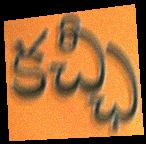
కచ్ఛీ